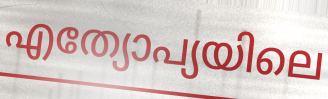
എത്യോപ്യയിലെ